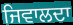
ਜਿਵਾਲਦਾ